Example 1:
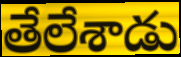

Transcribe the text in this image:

తేలేశాడు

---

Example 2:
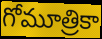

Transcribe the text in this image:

గోమూత్రికా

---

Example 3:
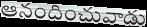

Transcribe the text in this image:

ఆనందించువాడు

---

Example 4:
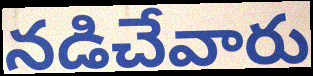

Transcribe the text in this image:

నడిచేవారు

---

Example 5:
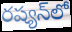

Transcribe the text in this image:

రష్యన్‌లో